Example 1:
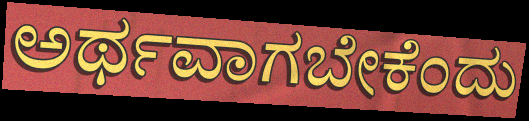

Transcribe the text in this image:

ಅರ್ಥವಾಗಬೇಕೆಂದು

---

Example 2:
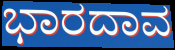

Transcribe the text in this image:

ಭಾರದಾವ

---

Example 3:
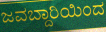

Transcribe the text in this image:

ಜವಬ್ದಾರಿಯಿಂದ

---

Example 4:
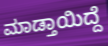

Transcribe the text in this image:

ಮಾಡ್ತಾಯಿದ್ದೆ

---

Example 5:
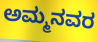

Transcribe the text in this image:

ಅಮ್ಮನವರ